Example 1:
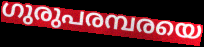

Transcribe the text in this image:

ഗുരുപരമ്പരയെ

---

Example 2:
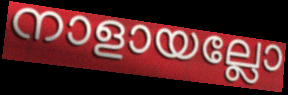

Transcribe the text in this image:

നാളായല്ലോ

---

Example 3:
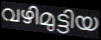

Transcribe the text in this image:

വഴിമുട്ടിയ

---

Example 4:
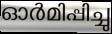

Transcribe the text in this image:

ഓർമിപ്പിച്ചു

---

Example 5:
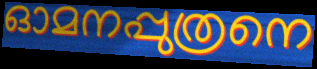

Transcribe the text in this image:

ഓമനപ്പുത്രനെ